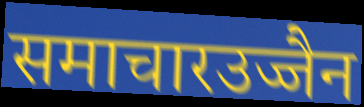
समाचारउज्जैन